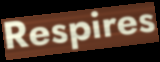
Respires